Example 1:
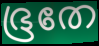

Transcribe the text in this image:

ഭൂതേ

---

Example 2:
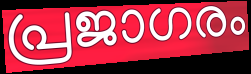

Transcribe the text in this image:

പ്രജാഗരം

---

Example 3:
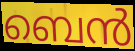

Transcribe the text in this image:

ബെൻ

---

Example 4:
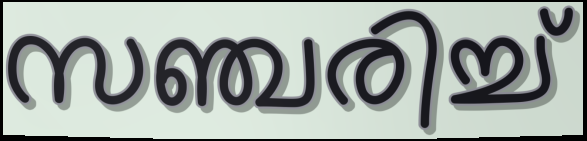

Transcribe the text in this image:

സഞ്ചരിച്ച്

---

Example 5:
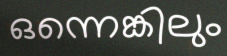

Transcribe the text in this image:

ഒന്നെങ്കിലും